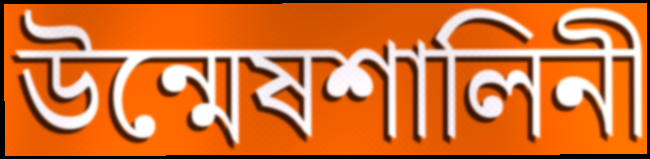
উন্মেষশালিনী